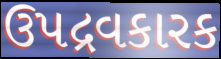
ઉપદ્રવકારક